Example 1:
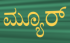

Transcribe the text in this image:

ಮ್ಯೂರ್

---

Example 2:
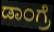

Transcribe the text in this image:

ಡಾಂಗ್ರೆ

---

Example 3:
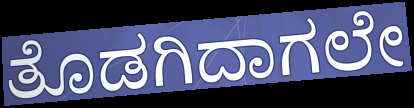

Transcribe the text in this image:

ತೊಡಗಿದಾಗಲೇ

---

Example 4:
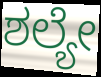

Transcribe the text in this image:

ಶಲ್ಯೇ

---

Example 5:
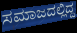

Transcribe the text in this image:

ಸಮಾಜದಲ್ಲಿದ್ದ